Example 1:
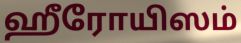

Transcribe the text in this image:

ஹீரோயிஸம்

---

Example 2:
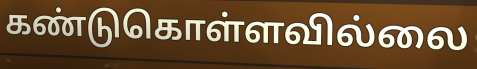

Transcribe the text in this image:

கண்டுகொள்ளவில்லை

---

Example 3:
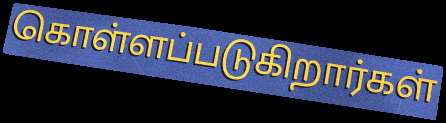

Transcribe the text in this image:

கொள்ளப்படுகிறார்கள்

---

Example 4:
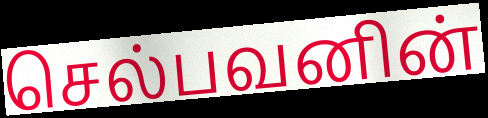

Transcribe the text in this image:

செல்பவனின்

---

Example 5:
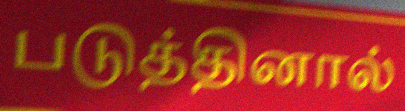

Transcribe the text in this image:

படுத்தினால்